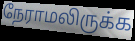
நேராமலிருக்க